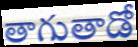
తాగుతాడో